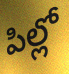
పిల్లో